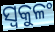
ସ୍ୱକୁଳଂ